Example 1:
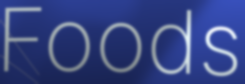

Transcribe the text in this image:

Foods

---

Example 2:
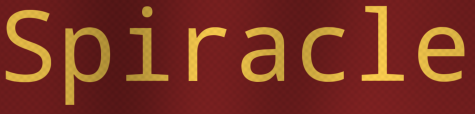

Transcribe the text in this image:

Spiracle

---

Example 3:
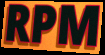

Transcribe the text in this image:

RPM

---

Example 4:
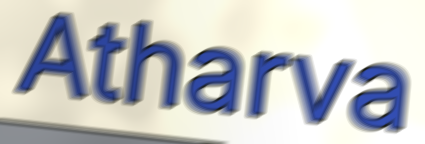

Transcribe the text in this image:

Atharva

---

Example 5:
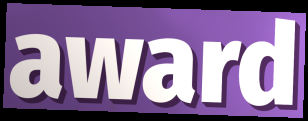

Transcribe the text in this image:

award